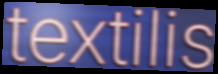
textilis